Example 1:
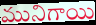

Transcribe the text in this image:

మునిగాయి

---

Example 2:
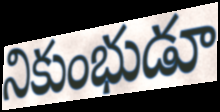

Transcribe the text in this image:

నికుంభుడూ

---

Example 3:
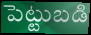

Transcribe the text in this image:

పెట్టుబడి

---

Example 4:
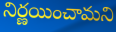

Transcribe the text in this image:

నిర్ణయించామని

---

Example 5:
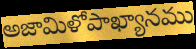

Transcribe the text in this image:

అజామిళోపాఖ్యానము